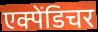
एक्पेंडिचर